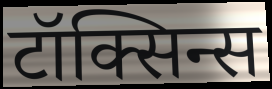
टॉक्सिन्स